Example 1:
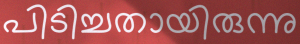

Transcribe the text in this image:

പിടിച്ചതായിരുന്നു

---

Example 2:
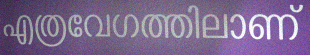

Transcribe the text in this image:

എത്രവേഗത്തിലാണ്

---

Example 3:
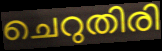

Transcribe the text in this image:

ചെറുതിരി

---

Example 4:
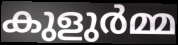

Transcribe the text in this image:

കുളുർമ്മ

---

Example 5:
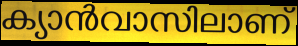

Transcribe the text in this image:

ക്യാൻവാസിലാണ്